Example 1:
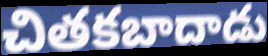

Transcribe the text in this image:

చితకబాదాడు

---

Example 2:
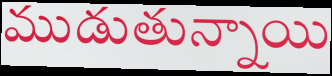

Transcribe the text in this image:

ముడుతున్నాయి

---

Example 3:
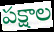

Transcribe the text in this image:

పక్షాల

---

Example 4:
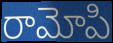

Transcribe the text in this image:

రామోపి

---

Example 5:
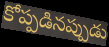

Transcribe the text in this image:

కోప్పడినప్పుడు